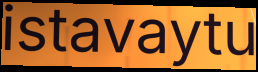
istavaytu